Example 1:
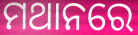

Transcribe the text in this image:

ମଥାନରେ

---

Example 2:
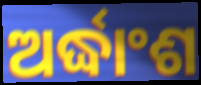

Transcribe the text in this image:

ଅର୍ଦ୍ଧାଂଶ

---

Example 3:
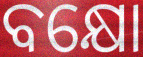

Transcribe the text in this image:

ବକ୍ଷୋ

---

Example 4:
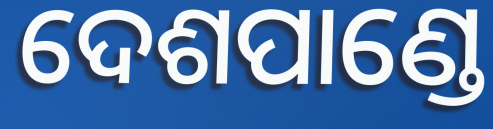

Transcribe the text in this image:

ଦେଶପାଣ୍ଡେ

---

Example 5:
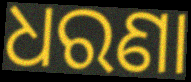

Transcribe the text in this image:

ଧରଣା